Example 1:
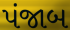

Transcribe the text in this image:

પંજાબ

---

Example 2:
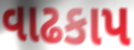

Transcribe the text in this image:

વાઢકાપ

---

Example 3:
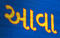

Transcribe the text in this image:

આવા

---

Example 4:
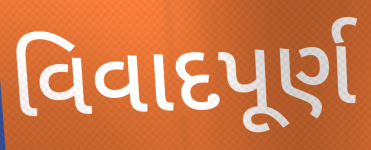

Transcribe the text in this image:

વિવાદપૂર્ણ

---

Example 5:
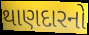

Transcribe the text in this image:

થાણદારનો